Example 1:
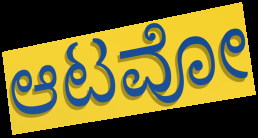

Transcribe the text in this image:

ಆಟವೋ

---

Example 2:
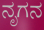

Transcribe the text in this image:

ನೃಗನ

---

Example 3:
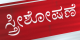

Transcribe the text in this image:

ಸ್ತ್ರೀಶೋಷಣೆ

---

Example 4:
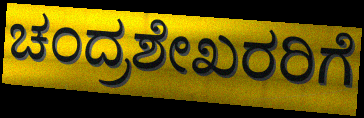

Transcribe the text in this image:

ಚಂದ್ರಶೇಖರರಿಗೆ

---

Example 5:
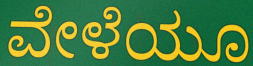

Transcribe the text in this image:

ವೇಳೆಯೂ